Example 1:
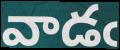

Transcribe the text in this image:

వాడఁ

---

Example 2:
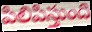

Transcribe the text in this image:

పిలిపిస్తుంది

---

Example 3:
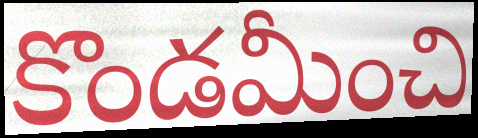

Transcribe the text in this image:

కొండమీంచి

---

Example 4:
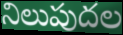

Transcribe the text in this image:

నిలుపుదల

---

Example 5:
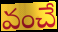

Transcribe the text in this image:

వంచే